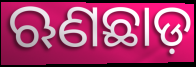
ଋଣଛାଡ଼